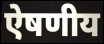
ऐषणीय